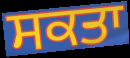
ਸਕਤਾ